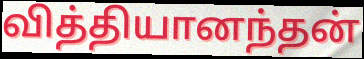
வித்தியானந்தன்